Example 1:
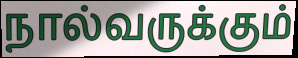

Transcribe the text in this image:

நால்வருக்கும்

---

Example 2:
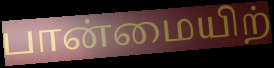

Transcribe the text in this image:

பான்மையிற்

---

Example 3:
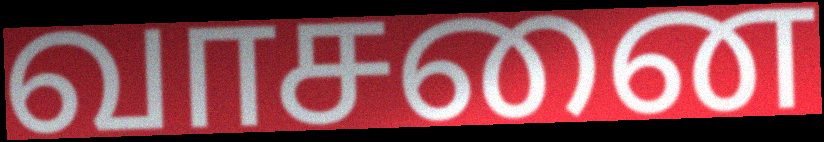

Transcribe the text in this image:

வாசனை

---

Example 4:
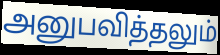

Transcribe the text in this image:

அனுபவித்தலும்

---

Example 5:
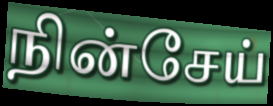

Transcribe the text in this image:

நின்சேய்